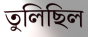
তুলিছিল